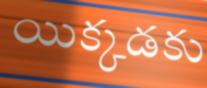
యిక్కడకు